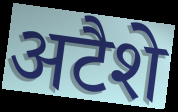
अटैशे